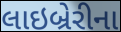
લાઇબ્રેરીના